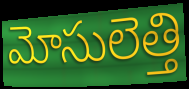
మోసులెత్తి